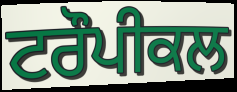
ਟਰੌਪੀਕਲ